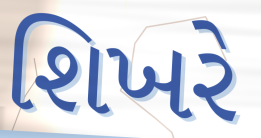
શિખરે